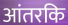
आंतरकि